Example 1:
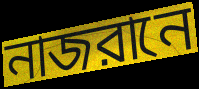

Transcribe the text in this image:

নাজরানে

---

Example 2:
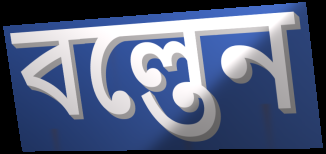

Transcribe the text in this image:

বল্তেন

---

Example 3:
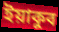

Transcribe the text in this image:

ইয়াকুব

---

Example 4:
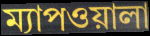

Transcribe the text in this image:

ম্যাপওয়ালা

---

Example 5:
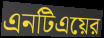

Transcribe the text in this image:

এনটিএয়ের